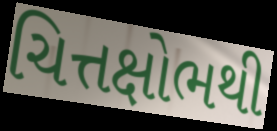
ચિત્તક્ષોભથી